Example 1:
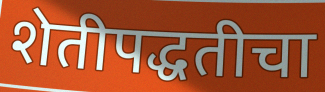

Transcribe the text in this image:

शेतीपद्धतीचा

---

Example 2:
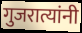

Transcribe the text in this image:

गुजरात्यांनी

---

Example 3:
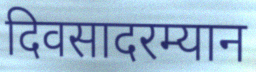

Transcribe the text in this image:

दिवसादरम्यान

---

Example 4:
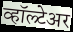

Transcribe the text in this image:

व्हॉल्टेअर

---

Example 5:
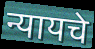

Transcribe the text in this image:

न्यायचे